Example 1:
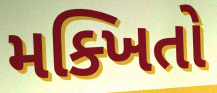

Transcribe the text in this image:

મક્ખિતો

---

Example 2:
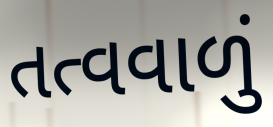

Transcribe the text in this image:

તત્વવાળું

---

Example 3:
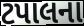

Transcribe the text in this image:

ટપાલના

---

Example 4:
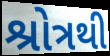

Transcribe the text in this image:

શ્રોત્રથી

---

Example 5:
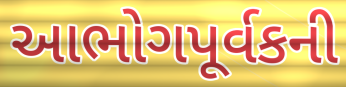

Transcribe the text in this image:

આભોગપૂર્વકની